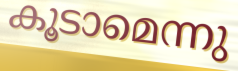
കൂടാമെന്നു